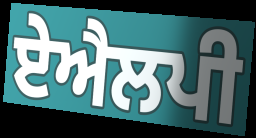
ਏਐਲਪੀ